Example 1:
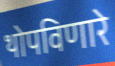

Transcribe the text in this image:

थोपविणारे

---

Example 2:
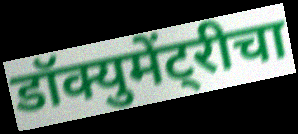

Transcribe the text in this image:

डॉक्युमेंट्रीचा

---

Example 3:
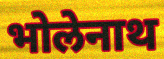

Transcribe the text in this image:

भोलेनाथ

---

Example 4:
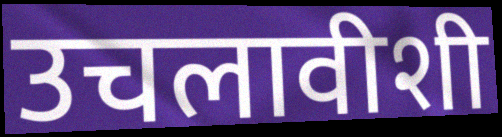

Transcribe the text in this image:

उचलावीशी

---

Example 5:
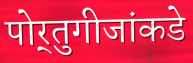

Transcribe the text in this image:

पोर्तुगीजांकडे